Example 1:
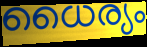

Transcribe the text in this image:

ധൈര്യം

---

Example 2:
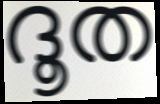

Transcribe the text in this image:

ദൂത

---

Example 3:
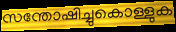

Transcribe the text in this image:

സന്തോഷിച്ചുകൊള്ളുക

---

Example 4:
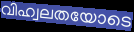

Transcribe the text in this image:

വിഹ്വലതയോടെ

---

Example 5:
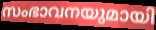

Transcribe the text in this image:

സംഭാവനയുമായി